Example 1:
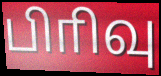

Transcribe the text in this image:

பிரிவு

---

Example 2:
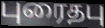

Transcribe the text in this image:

புரைதபு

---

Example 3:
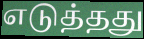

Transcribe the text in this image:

எடுத்தது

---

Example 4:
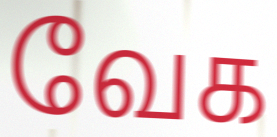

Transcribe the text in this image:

வேக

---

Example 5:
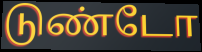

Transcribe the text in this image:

டுண்டோ